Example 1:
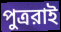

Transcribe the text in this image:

পুত্ররাই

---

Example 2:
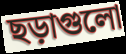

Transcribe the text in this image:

ছড়াগুলো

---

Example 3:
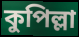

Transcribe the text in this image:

কুপিল্লা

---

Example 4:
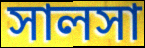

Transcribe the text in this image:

সালসা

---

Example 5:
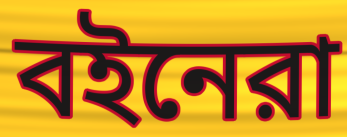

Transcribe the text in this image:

বইনেরা